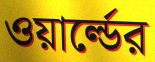
ওয়ার্ল্ডের